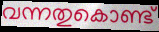
വന്നതുകൊണ്ട്